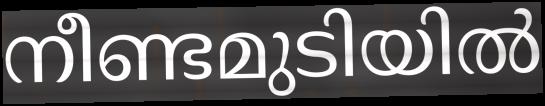
നീണ്ടമുടിയിൽ